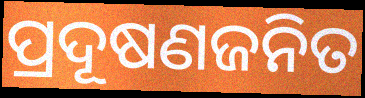
ପ୍ରଦୂଷଣଜନିତ